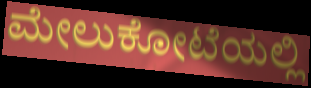
ಮೇಲುಕೋಟೆಯಲ್ಲಿ